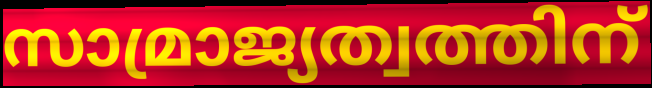
സാമ്രാജ്യത്വത്തിന്